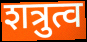
शत्रुत्व